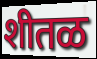
शीतळ